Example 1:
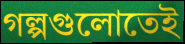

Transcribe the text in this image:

গল্পগুলোতেই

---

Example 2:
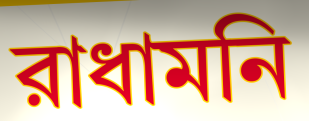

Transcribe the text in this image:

রাধামনি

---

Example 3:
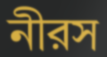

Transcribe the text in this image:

নীরস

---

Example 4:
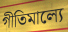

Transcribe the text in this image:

গীতিমাল্যে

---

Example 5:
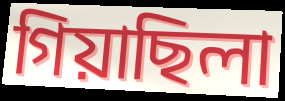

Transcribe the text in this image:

গিয়াছিলা